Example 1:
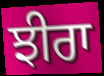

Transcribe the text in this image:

ਝੀਰਾ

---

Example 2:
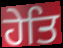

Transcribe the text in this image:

ਹੇਤਿ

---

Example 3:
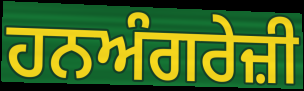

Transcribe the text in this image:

ਹਨਅੰਗਰੇਜ਼ੀ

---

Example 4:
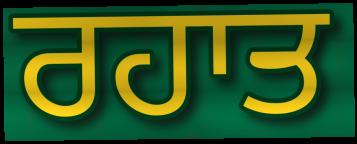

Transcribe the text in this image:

ਰਹਾਤ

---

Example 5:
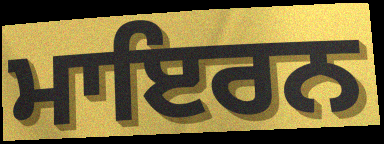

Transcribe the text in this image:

ਮਾਇਰਨ